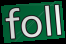
foll